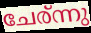
ചേര്ന്നു